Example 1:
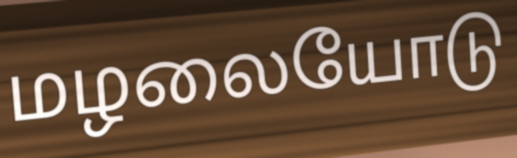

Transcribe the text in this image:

மழலையோடு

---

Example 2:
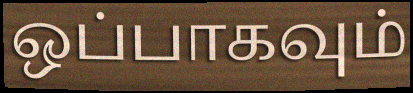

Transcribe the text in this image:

ஒப்பாகவும்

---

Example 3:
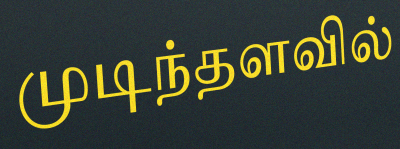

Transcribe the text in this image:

முடிந்தளவில்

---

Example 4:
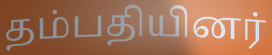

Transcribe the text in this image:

தம்பதியினர்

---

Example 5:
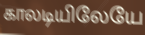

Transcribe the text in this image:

காலடியிலேயே